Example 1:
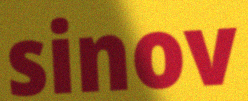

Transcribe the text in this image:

sinov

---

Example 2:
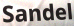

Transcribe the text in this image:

Sandel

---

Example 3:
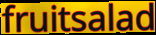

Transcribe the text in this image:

fruitsalad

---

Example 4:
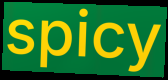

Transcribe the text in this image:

spicy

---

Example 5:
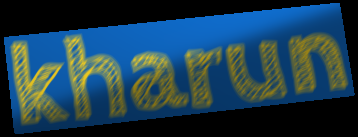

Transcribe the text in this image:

kharun